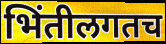
भिंतीलगतच